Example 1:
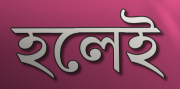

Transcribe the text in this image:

হলেই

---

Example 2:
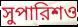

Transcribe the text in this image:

সুপারিশও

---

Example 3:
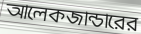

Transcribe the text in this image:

আলেকজান্ডারের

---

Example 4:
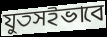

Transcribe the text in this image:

যুতসইভাবে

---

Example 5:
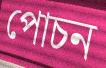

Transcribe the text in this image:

পোচন